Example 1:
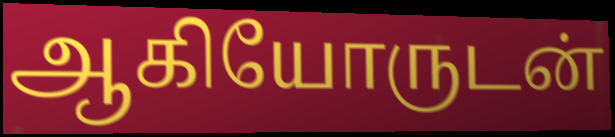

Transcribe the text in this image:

ஆகியோருடன்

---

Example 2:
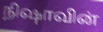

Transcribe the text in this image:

நிஷாவின்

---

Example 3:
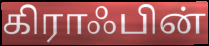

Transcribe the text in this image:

கிராஃபின்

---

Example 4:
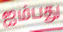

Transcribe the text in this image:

ஐம்பது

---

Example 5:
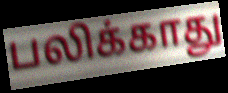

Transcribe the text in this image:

பலிக்காது